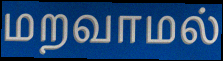
மறவாமல்